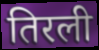
तिरली